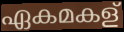
ഏകമകള്